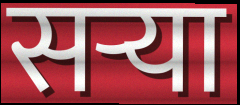
सऱ्या